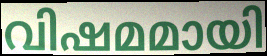
വിഷമമായി